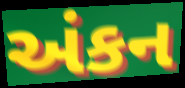
અંકન